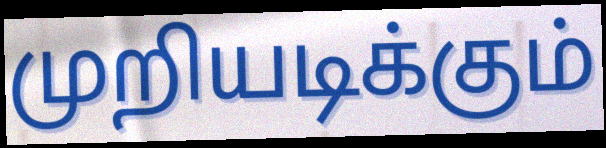
முறியடிக்கும்